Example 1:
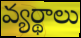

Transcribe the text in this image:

వ్యర్థాలు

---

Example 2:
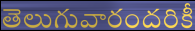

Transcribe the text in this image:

తెలుగువారందరికీ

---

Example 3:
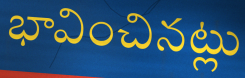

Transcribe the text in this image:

భావించినట్లు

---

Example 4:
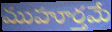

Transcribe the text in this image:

ముహూర్తమే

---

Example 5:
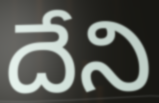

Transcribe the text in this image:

దేని